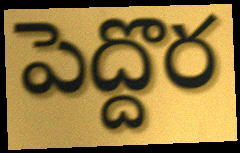
పెద్దొర